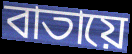
বাতায়ে